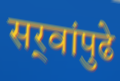
सर्वांपुढे